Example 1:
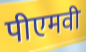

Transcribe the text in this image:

पीएमवी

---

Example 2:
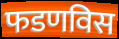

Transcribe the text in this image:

फडणविस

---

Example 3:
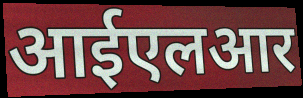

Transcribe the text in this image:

आईएलआर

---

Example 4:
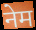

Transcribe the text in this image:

नेम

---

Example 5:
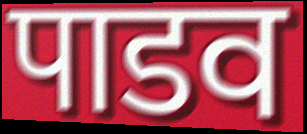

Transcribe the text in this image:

पाडव